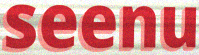
seenu